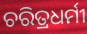
ଚରିତ୍ରଧର୍ମୀ